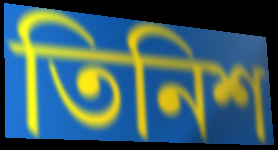
তিনিশ